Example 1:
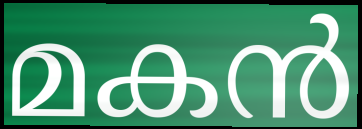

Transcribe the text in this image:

മകൻ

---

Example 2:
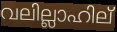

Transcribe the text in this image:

വലില്ലാഹില്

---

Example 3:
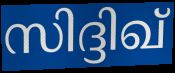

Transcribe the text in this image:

സിദ്ദിഖ്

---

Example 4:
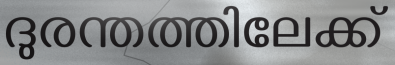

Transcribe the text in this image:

ദുരന്തത്തിലേക്ക്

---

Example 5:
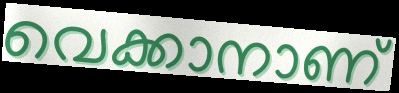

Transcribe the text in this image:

വെക്കാനാണ്